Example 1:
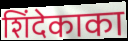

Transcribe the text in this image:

शिंदेकाका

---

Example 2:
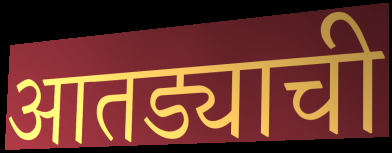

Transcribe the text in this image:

आतड्याची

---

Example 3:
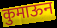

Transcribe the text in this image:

कुमाऊन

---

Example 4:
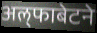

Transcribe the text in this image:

अल्फाबेटने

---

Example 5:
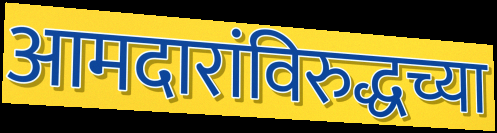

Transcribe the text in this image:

आमदारांविरुद्धच्या